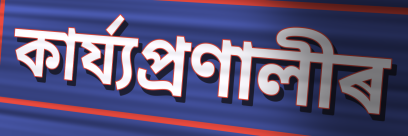
কাৰ্য্যপ্ৰণালীৰ